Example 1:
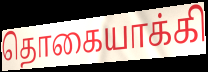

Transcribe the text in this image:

தொகையாக்கி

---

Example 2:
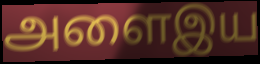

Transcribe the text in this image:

அளைஇய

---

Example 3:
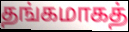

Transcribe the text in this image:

தங்கமாகத்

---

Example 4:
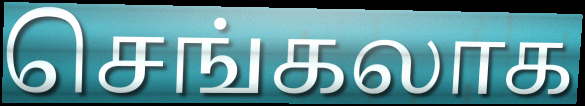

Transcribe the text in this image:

செங்கலாக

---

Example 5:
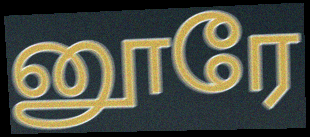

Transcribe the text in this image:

னூரே